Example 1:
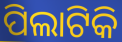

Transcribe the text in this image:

ପିଲାଟିକି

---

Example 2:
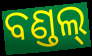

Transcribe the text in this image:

ବଣ୍ଡଲ୍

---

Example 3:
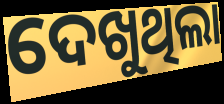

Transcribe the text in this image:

ଦେଖୁଥିଲା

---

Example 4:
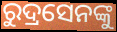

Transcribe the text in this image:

ରୁଦ୍ରସେନଙ୍କୁ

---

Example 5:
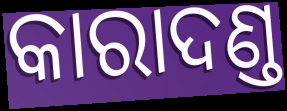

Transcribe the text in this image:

କାରାଦଣ୍ଡ